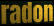
radon